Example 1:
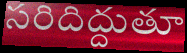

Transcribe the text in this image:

సరిదిద్దుతూ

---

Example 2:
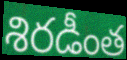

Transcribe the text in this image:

శిరడీంత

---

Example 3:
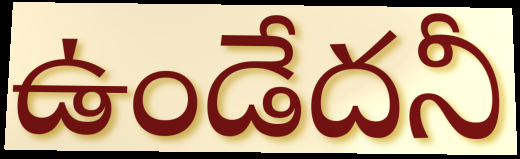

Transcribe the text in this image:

ఉండేదనీ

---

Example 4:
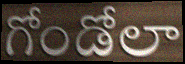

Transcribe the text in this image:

గోండోలా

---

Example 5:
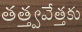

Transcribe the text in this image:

తత్త్వవేత్తకు